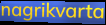
nagrikvarta